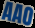
AAO